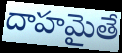
దాహమైతే